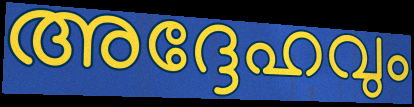
അദ്ദേഹവും